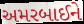
અમરબાઈને